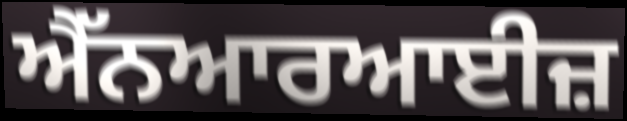
ਐੱਨਆਰਆਈਜ਼